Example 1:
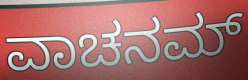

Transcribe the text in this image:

ವಾಚನಮ್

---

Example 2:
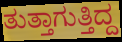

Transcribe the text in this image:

ತುತ್ತಾಗುತ್ತಿದ್ದ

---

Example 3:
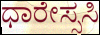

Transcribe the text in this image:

ಧಾರೇಸ್ಸಸಿ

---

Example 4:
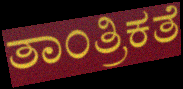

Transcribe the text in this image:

ತಾಂತ್ರಿಕತೆ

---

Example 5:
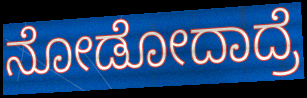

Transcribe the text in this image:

ನೋಡೋದಾದ್ರೆ